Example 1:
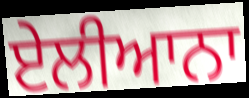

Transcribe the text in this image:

ਏਲੀਆਨਾ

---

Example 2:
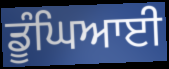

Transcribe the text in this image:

ਡੂੰਘਿਆਈ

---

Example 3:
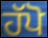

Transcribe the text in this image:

ਹੱਪੋ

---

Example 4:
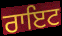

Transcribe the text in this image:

ਰਾਇਟ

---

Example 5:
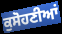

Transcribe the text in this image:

ਕੁਸੋਹਣੀਆਂ